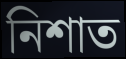
নিশাত